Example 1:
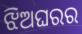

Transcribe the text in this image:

ଝିଅଘରର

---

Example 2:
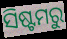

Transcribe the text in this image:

ସିଷ୍ଟମରୁ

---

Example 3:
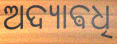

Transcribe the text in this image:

ଅଦ୍ୟାଵଧି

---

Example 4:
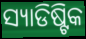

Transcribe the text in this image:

ସ୍ୟାଡିଷ୍ଟିକ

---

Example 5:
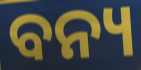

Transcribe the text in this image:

ବନ୍ୟ